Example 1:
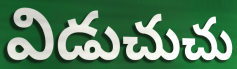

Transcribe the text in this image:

విడుచుచు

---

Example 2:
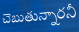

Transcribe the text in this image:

చెబుతున్నారనీ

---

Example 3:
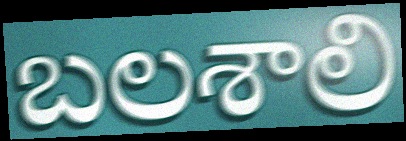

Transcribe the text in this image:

బలశాలి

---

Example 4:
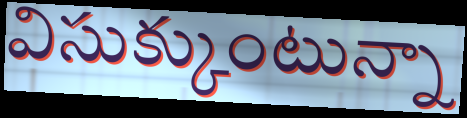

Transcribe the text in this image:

విసుక్కుంటున్నా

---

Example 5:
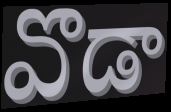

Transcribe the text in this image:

వొడా